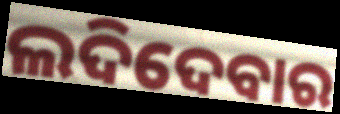
ଲଦିଦେବାର